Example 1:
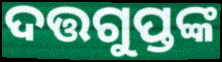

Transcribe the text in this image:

ଦତ୍ତଗୁପ୍ତଙ୍କ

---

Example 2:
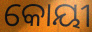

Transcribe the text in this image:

କୋୟୀ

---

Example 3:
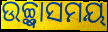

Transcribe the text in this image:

ଉଚ୍ଛ୍ଵାସମୟ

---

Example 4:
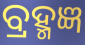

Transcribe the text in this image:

ବ୍ରହ୍ମଜ୍ଞ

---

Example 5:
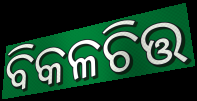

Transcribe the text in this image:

ବିକଳଚିତ୍ତ